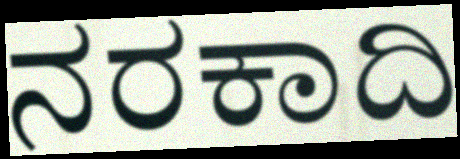
ನರಕಾದಿ